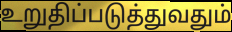
உறுதிப்படுத்துவதும்